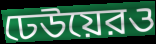
ঢেউয়েরও